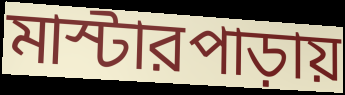
মাস্টারপাড়ায়